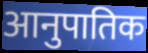
आनुपातिक